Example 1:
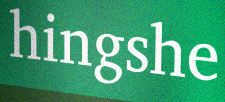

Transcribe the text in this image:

hingshe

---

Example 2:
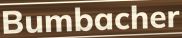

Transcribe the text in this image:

Bumbacher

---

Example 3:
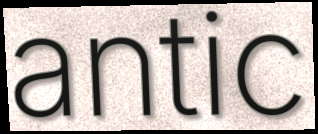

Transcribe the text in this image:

antic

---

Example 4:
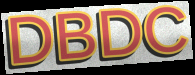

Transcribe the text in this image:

DBDC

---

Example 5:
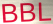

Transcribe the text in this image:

BBL